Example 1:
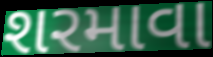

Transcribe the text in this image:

શરમાવા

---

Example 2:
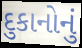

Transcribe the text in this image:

દુકાનોનું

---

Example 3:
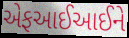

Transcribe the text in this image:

એફઆઈઆઈને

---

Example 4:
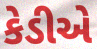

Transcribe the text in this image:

કેડીએ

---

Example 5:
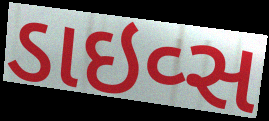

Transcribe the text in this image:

ડાઇવ્સ